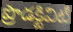
ప్రొడక్టివిటీ